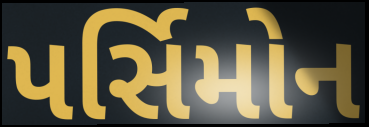
પર્સિમોન